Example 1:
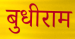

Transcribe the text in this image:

बुधीराम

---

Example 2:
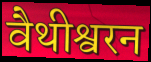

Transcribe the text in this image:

वैथीश्वरन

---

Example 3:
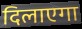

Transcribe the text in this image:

दिलाएगा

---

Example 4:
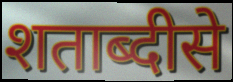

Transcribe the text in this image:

शताब्दीसे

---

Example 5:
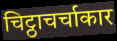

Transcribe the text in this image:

चिट्ठाचर्चाकार